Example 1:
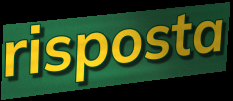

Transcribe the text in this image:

risposta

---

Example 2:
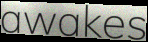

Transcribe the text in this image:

awakes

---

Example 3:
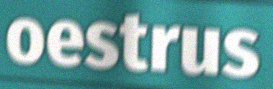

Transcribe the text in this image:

oestrus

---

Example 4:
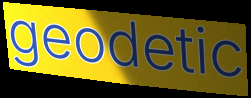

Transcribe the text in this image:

geodetic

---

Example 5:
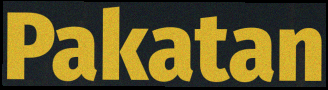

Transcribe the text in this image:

Pakatan